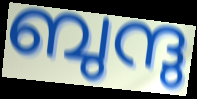
ബുന്ദു